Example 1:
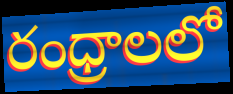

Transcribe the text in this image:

రంధ్రాలలో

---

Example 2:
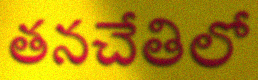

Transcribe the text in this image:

తనచేతిలో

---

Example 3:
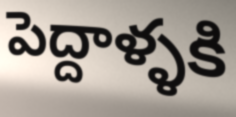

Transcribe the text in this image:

పెద్దాళ్ళకి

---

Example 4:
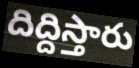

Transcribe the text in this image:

దిద్దిస్తారు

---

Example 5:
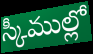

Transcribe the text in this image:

స్కీముల్లో